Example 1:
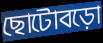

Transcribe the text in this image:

ছোটোবড়ো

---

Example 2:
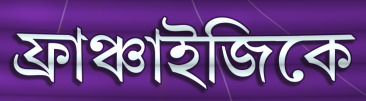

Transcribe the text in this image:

ফ্রাঞ্চাইজিকে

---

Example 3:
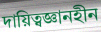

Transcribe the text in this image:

দায়িত্বজ্ঞানহীন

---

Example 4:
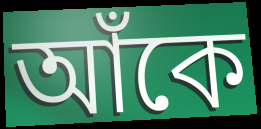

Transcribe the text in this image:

আঁকে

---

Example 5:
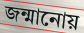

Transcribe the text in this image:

জন্মানোয়